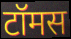
टॉमस